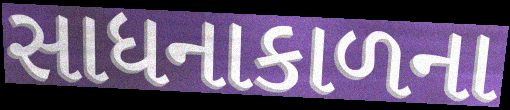
સાધનાકાળના